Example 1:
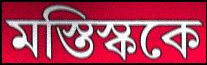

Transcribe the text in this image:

মস্তিস্ককে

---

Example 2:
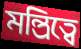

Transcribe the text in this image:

মন্ত্রিত্বে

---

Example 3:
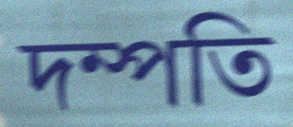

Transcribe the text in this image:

দম্পতি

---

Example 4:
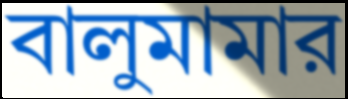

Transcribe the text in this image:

বালুমামার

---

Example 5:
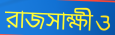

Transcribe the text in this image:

রাজসাক্ষীও